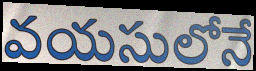
వయసులోనే